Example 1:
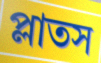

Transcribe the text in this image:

প্লাতস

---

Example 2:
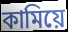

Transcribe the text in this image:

কামিয়ে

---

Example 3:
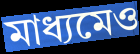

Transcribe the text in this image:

মাধ্যমেও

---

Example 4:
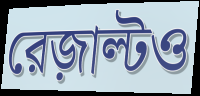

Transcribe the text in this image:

রেজ়াল্টও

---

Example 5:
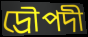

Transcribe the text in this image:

দ্রৌপদী